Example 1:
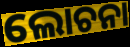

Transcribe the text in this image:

ଲୋଚନା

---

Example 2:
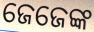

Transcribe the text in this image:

ଜେଜେଙ୍କ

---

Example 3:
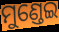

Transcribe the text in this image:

ମୁଣ୍ଡେଇ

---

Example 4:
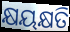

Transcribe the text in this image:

କ୍ଷୟକ୍ଷତି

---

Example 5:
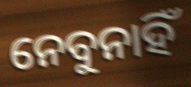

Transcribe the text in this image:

ନେବୁନାହିଁ